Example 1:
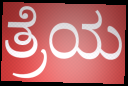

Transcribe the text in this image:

ತ್ರೆಯ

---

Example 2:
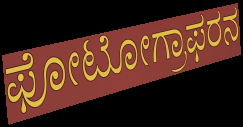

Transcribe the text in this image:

ಫೋಟೋಗ್ರಾಫರನ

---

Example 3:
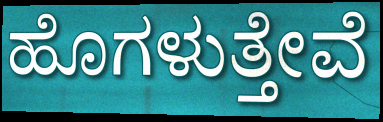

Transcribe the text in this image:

ಹೊಗಳುತ್ತೇವೆ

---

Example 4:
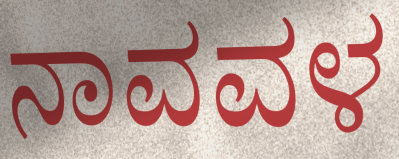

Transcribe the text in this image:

ನಾವವಳ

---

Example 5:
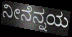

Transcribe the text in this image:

ನೀನೆನ್ನಯ